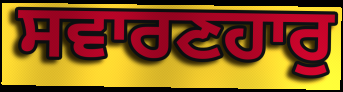
ਸਵਾਰਣਹਾਰੁ